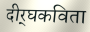
दीर्घकविता